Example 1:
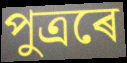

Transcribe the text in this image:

পুত্ৰৰে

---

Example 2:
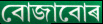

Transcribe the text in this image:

বোজাবোৰ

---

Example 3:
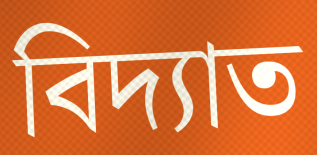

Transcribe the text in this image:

বিদ্যাত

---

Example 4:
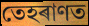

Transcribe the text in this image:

তেহৰাণত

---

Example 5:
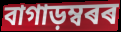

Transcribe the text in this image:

বাগাড়ম্বৰৰ